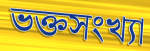
ভক্তসংখ্যা